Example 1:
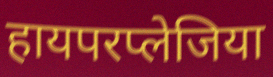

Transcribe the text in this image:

हायपरप्लेजिया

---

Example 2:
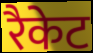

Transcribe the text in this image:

रैकेट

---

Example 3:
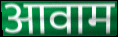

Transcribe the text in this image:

आवाम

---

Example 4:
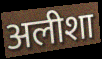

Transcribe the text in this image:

अलीशा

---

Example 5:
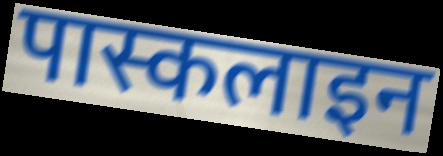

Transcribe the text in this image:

पास्कलाइन